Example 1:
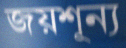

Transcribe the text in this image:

জয়শূন্য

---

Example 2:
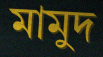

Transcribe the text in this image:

মামুদ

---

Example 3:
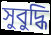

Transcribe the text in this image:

সুবুদ্ধি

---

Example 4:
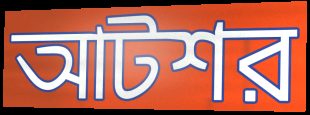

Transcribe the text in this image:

আটশর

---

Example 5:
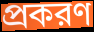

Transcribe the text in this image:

প্রকরণ